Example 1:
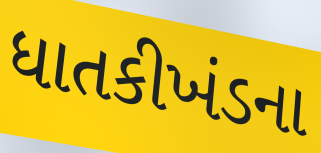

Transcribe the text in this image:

ધાતકીખંડના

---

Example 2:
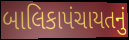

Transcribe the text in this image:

બાલિકાપંચાયતનું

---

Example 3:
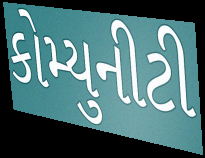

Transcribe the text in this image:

કોમ્યુનીટી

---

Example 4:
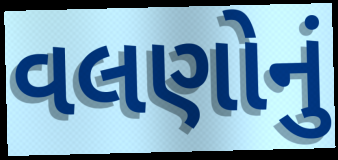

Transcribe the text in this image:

વલણોનું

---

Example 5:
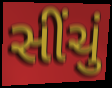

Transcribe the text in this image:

સીંચું